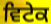
ਵਿਟੇਕ